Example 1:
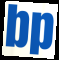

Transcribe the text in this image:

bp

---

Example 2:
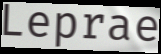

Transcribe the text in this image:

Leprae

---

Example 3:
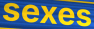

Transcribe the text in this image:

sexes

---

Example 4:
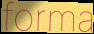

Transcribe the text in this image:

forma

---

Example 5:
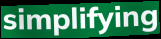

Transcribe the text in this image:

simplifying